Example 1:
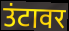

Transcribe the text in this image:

उंटावर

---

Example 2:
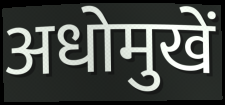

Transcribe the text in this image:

अधोमुखें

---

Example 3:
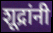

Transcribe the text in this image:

शूद्रांनी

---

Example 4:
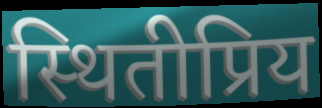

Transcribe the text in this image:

स्थितीप्रिय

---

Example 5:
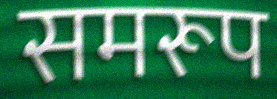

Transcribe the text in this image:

समरूप